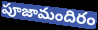
పూజామందిరం